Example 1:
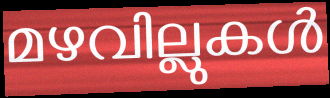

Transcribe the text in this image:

മഴവില്ലുകൾ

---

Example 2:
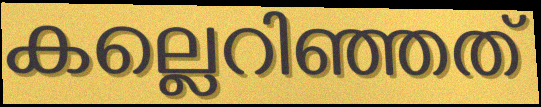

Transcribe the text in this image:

കല്ലെറിഞ്ഞത്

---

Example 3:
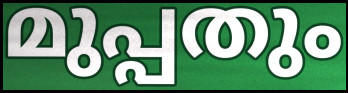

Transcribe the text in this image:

മുപ്പതും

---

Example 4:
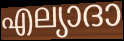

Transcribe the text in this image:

എല്യാദാ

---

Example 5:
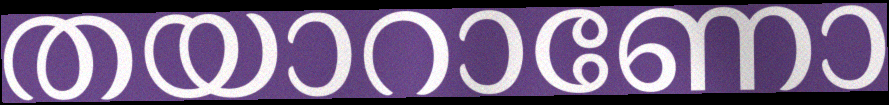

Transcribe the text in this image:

തയാറാണോ